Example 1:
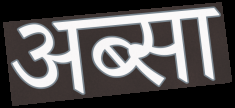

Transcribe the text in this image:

अब्सा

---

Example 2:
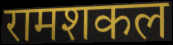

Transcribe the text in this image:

रामशकल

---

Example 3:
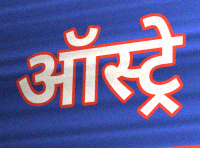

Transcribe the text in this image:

ऑस्ट्रे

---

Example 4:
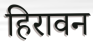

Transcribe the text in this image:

हिरावन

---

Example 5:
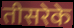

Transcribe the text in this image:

तीसरेके